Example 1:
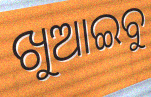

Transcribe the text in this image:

ଖୁଆଇବୁ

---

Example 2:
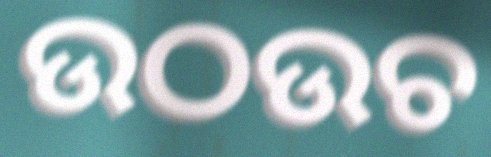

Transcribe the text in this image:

ଉଠଉଚ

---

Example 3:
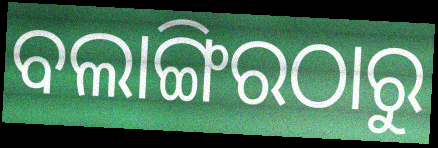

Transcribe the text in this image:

ବଲାଙ୍ଗିରଠାରୁ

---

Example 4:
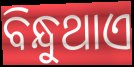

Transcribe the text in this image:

ବିନ୍ଧୁଥାଏ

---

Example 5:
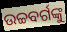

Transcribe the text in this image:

ଉଚ୍ଚବର୍ଗଙ୍କୁ